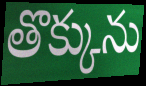
తొక్కును